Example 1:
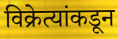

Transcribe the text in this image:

विक्रेत्यांकडून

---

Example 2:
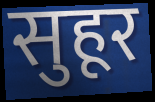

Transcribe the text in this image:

सुहूर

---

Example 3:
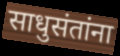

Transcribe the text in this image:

साधुसंतांना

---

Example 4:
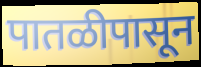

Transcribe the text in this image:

पातळीपासून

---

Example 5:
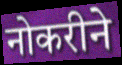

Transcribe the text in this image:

नोकरीने